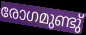
രോഗമുണ്ടു്